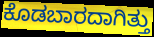
ಕೊಡಬಾರದಾಗಿತ್ತು